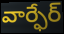
వార్ఫేర్